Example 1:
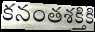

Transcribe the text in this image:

కనంతశక్తికి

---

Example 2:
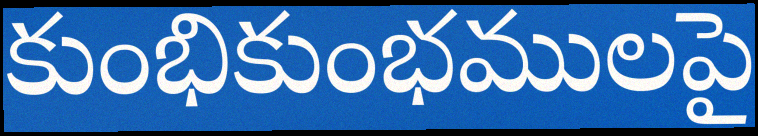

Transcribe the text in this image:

కుంభికుంభములపై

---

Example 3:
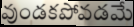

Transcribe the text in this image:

వుండకపోవడమే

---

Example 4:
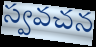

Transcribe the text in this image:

స్వవచన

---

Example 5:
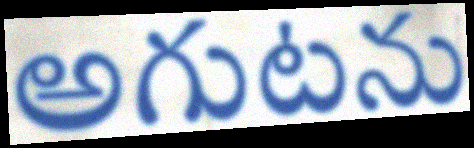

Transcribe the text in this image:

అగుటను